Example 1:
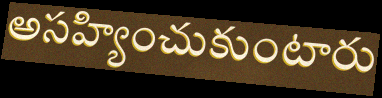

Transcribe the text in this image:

అసహ్యించుకుంటారు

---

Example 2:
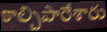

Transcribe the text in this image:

కాల్చిపారేశారు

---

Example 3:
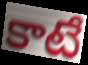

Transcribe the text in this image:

కాటే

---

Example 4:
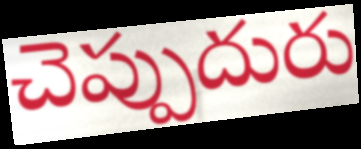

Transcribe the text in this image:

చెప్పుదురు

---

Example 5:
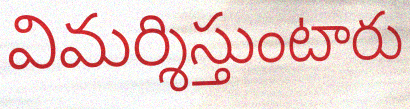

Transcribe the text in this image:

విమర్శిస్తుంటారు